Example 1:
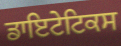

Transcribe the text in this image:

ਡਾਇਟੇਟਿਕਸ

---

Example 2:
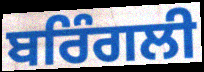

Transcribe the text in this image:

ਬਰਿੰਗਲੀ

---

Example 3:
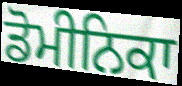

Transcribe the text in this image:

ਡੋਮੀਨਿਕਾ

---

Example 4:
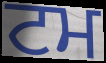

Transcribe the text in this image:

ਟਮ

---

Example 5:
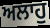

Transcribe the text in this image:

ਅਲਾਹੁ